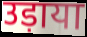
उड़ाया